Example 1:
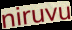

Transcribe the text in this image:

niruvu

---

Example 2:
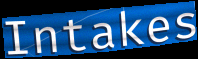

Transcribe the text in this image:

Intakes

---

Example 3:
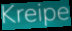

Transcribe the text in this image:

Kreipe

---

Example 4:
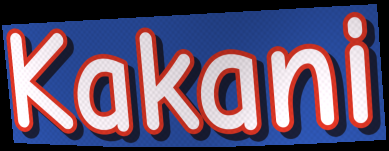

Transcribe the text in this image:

Kakani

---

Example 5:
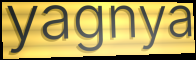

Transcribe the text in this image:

yagnya